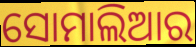
ସୋମାଲିଆର